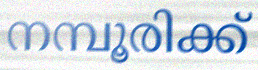
നമ്പൂരിക്ക്